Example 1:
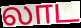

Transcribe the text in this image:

லாட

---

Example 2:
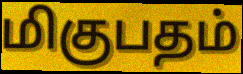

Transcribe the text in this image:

மிகுபதம்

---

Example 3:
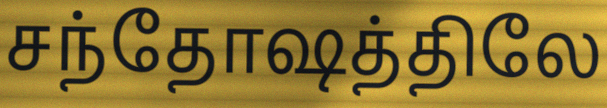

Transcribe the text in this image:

சந்தோஷத்திலே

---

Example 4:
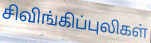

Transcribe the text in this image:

சிவிங்கிப்புலிகள்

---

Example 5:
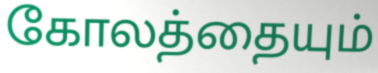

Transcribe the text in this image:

கோலத்தையும்